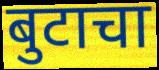
बुटाचा